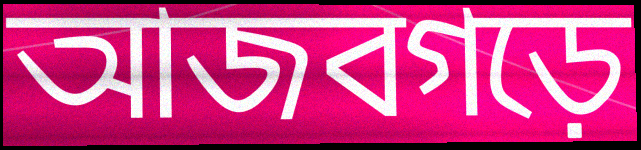
আজবগড়ে